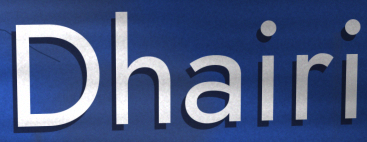
Dhairi